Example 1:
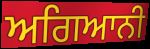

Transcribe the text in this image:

ਅਗਿਆਨੀ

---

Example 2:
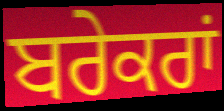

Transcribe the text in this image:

ਬਰੇਕਰਾਂ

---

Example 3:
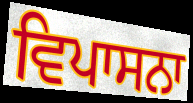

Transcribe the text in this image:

ਵਿਪਾਸਨਾ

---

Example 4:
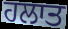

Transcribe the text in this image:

ਹਲਾਤ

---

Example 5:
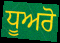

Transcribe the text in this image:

ਧੂਅਰੋ